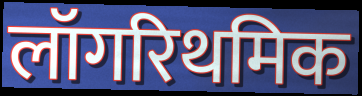
लॉगरिथमिक